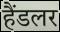
हैंडलर